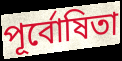
পূর্বোষিতা